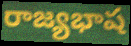
రాజ్యభాష